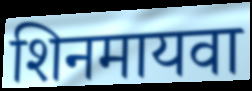
शिनमायवा